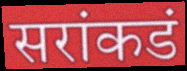
सरांकडं